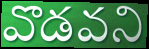
వొడవని